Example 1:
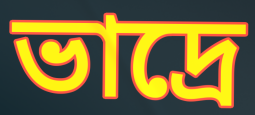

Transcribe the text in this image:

ভাদ্রে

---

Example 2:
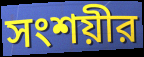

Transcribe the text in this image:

সংশয়ীর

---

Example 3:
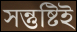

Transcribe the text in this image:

সন্তুষ্টিই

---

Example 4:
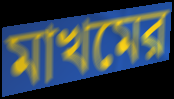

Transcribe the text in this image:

মাখমের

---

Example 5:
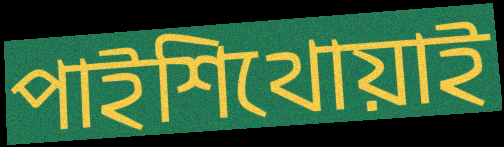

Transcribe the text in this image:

পাইশিথোয়াই